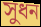
সুধন